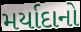
મર્યાદાનો